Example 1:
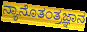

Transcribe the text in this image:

ನ್ಯಾನೊತಂತ್ರಜ್ಞಾನ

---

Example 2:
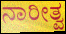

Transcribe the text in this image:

ನಾರೀತ್ವ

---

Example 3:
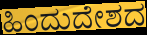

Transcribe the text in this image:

ಹಿಂದುದೇಶದ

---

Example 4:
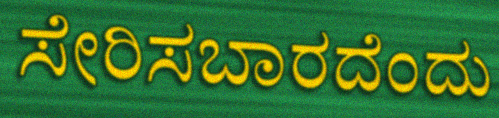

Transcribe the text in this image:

ಸೇರಿಸಬಾರದೆಂದು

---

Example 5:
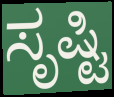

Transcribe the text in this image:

ಸೃಷ್ಟಿ